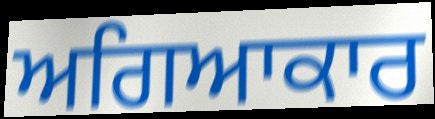
ਅਗਿਆਕਾਰ